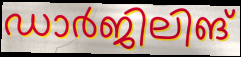
ഡാർജിലിങ്